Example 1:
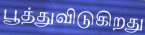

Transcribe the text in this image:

பூத்துவிடுகிறது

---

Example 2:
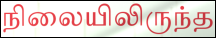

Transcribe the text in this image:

நிலையிலிருந்த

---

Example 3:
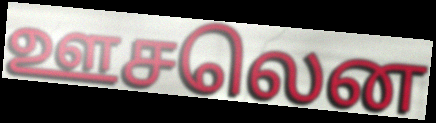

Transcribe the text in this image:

ஊசலென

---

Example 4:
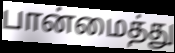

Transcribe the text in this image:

பான்மைத்து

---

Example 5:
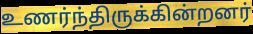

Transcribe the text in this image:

உணர்ந்திருக்கின்றனர்